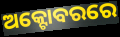
ଅକ୍ଟୋବରରେ